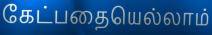
கேட்பதையெல்லாம்